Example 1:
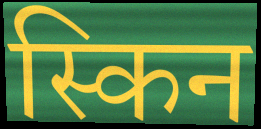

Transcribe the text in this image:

स्किन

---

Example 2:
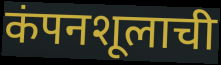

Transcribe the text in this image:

कंपनशूलाची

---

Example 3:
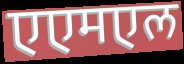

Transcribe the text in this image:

एएमएल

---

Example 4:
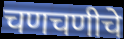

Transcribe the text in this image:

चणचणीचे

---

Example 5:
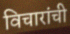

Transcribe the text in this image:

विचारांची